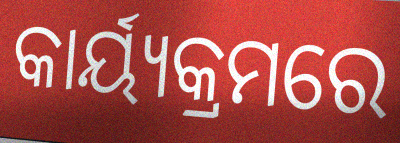
କାର୍ୟ୍ୟକ୍ରମରେ